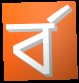
র্ব